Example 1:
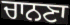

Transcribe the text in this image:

ਚਾਨਣਾ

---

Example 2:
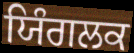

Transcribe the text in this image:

ਯਿੰਗਲਕ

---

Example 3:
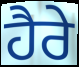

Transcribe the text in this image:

ਹੈਰੇ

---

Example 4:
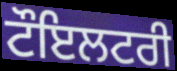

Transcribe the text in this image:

ਟੌਇਲਟਰੀ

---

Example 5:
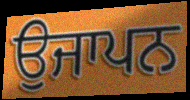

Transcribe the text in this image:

ਉਜਾਪਨ